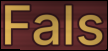
Fals